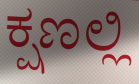
ಕ್ಷಣಲ್ಲಿ